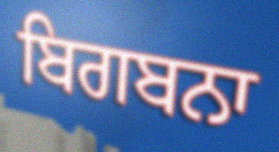
ਬਿਗਬਨਾ